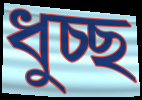
ধুচ্ছ